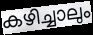
കഴിച്ചാലും